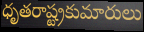
ధృతరాష్ట్రకుమారులు